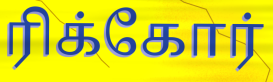
ரிக்கோர்